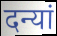
दन्यां